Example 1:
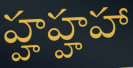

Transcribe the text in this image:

హ్హహ్హహా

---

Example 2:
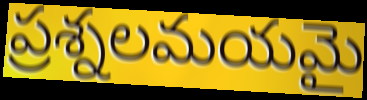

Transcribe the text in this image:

ప్రశ్నలమయమై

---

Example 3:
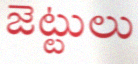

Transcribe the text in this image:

జెట్టులు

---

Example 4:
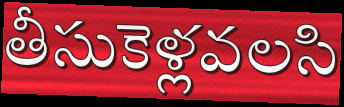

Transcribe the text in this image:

తీసుకెళ్లవలసి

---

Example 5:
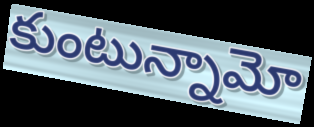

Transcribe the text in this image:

కుంటున్నామో